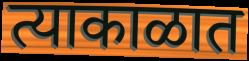
त्याकाळात